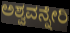
ಅಶ್ವವನ್ನೇರಿ